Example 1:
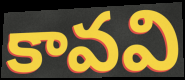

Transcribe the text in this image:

కావవి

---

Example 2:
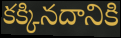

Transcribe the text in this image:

కక్కినదానికి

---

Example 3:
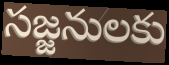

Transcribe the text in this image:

సజ్జనులకు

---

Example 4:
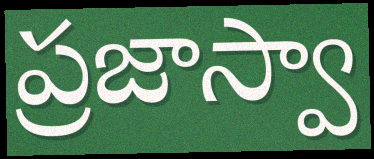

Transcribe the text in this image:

ప్రజాస్వా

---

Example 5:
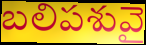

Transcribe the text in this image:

బలిపశువై